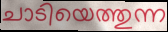
ചാടിയെത്തുന്ന